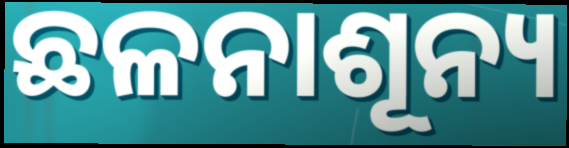
ଛଳନାଶୂନ୍ୟ